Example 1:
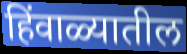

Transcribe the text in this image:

हिंवाळ्यातील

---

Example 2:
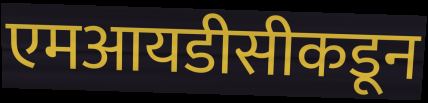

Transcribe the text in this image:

एमआयडीसीकडून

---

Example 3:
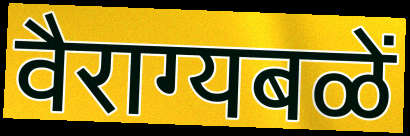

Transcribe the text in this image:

वैराग्यबळें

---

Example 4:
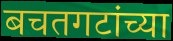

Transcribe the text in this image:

बचतगटांच्या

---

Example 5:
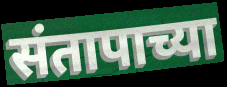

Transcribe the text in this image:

संतापाच्या